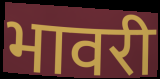
भावरी